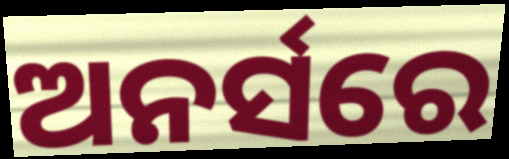
ଅନର୍ସରେ